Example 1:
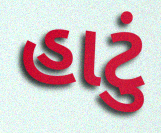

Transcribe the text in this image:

હાટું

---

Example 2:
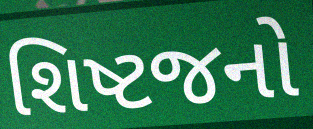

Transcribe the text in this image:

શિષ્ટજનો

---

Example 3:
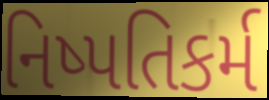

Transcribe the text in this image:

નિષ્પતિકર્મ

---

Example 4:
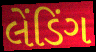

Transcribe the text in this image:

લેંડિંગ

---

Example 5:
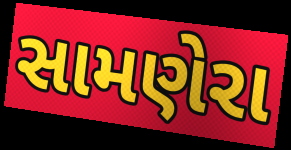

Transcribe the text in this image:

સામણેરા